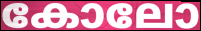
കോലോ